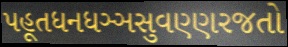
પહૂતધનધઞ્ઞસુવણ્ણરજતો